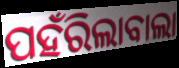
ପହଁରିଲାବାଲା